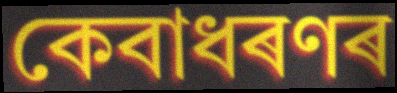
কেবাধৰণৰ